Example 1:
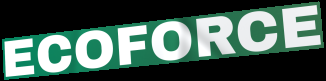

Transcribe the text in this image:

ECOFORCE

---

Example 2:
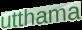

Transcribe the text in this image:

utthama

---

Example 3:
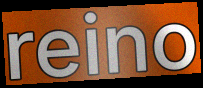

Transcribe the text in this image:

reino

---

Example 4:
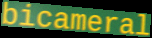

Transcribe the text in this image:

bicameral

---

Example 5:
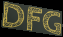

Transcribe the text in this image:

DFG